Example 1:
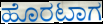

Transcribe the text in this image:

ಹೊರಟಾಗ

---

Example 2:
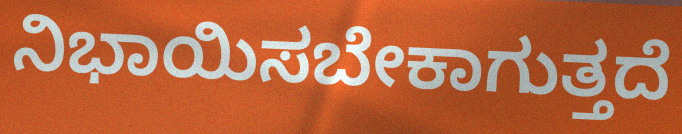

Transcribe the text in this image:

ನಿಭಾಯಿಸಬೇಕಾಗುತ್ತದೆ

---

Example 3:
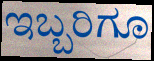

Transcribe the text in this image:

ಇಬ್ಬರಿಗೂ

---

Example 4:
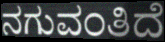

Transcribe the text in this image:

ನಗುವಂತಿದೆ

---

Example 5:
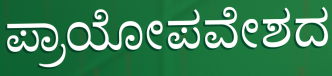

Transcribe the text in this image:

ಪ್ರಾಯೋಪವೇಶದ